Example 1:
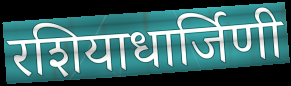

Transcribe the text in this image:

रशियाधार्जिणी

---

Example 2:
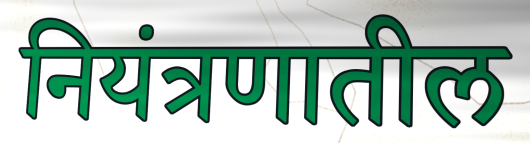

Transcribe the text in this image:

नियंत्रणातील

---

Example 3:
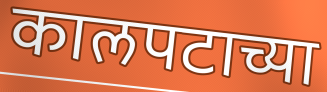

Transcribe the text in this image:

कालपटाच्या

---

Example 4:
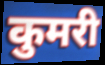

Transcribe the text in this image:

कुमरी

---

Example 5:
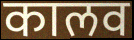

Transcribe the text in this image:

कालव